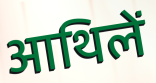
आथिलें